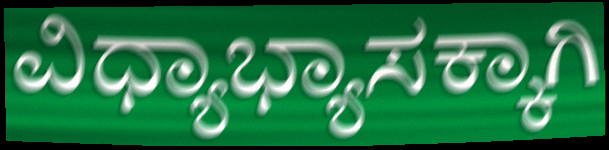
ವಿಧ್ಯಾಭ್ಯಾಸಕ್ಕಾಗಿ